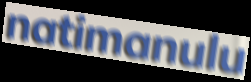
natimanulu